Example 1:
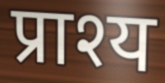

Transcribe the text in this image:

प्राश्य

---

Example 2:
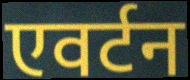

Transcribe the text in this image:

एवर्टन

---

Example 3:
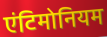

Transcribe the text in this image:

एंटिमोनियम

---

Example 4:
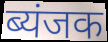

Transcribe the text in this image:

ब्यंजक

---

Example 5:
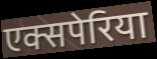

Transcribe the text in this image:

एक्सपेरिया